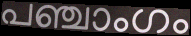
പഞ്ചാംഗം